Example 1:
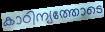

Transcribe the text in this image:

കാഠിന്യത്തോടെ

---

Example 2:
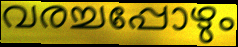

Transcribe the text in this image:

വരച്ചപ്പോഴും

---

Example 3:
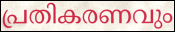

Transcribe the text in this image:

പ്രതികരണവും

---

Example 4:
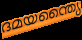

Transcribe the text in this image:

ദമയന്ത്യൈ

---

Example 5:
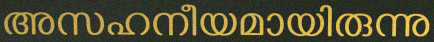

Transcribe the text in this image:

അസഹനീയമായിരുന്നു